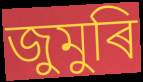
জুমুৰি